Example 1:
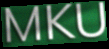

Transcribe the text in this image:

MKU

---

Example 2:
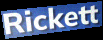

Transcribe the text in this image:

Rickett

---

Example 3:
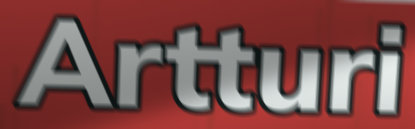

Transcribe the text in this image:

Artturi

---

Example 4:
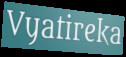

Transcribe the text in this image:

Vyatireka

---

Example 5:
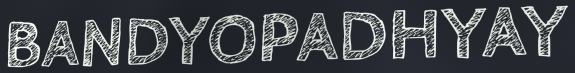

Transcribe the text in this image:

BANDYOPADHYAY